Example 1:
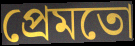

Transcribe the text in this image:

প্ৰেমতো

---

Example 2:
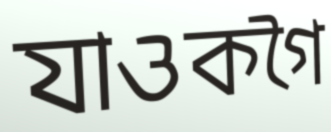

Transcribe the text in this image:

যাওকগৈ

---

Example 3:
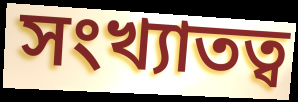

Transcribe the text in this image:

সংখ্যাতত্ব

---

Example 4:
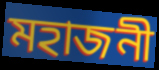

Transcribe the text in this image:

মহাজনী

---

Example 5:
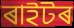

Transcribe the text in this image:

ৰাইটৰ